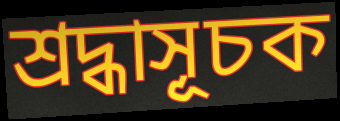
শ্রদ্ধাসূচক